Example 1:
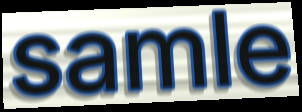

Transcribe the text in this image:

samle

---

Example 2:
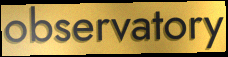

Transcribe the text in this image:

observatory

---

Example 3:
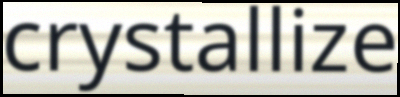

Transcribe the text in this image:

crystallize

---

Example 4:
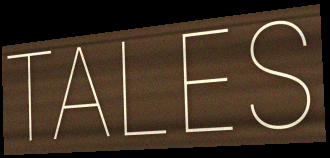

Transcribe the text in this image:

TALES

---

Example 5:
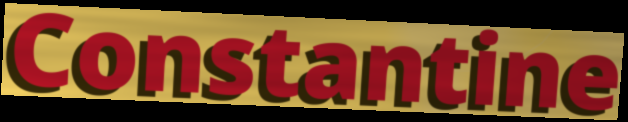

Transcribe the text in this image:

Constantine